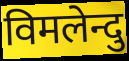
विमलेन्दु